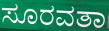
ಸೂರವತಾ